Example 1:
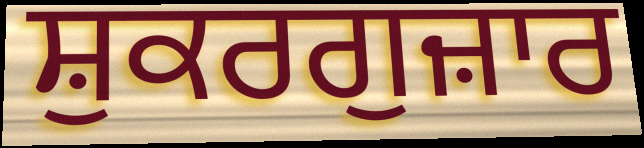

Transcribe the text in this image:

ਸ਼ੁਕਰਗੁਜ਼ਾਰ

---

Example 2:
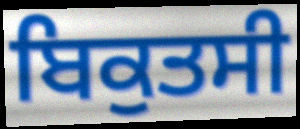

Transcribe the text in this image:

ਬਿਕੁਤਸੀ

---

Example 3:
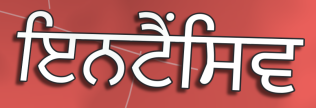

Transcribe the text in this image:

ਇਨਟੈਂਸਿਵ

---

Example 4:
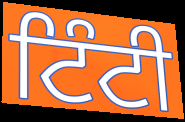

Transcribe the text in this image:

ਟਿੰਟੀ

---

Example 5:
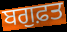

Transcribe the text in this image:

ਬਗੁਫ਼ਤ